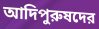
আদিপুরুষদের